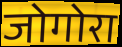
जोगोरा